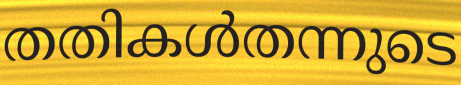
തതികൾതന്നുടെ